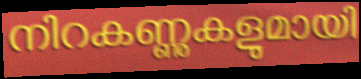
നിറകണ്ണുകളുമായി